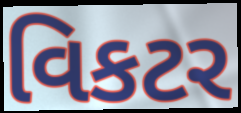
વિકટર